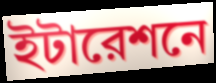
ইটারেশনে